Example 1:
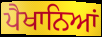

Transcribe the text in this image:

ਪੈਖਾਨਿਆਂ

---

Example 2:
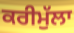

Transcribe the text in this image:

ਕਰੀਮੁੱਲਾ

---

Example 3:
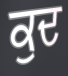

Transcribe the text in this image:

ਕੁਦ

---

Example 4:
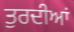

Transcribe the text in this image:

ਤੁਰਦੀਆਂ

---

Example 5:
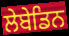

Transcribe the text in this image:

ਲੇਬੇਡਿਨ